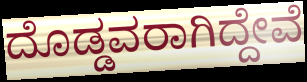
ದೊಡ್ಡವರಾಗಿದ್ದೇವೆ